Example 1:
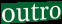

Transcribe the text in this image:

outro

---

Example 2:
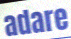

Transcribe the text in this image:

adare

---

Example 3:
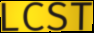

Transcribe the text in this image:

LCST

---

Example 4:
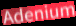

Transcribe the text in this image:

Adenium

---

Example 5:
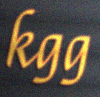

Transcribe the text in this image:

kgg